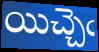
యిచ్చెఁ